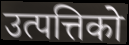
उत्पत्तिको